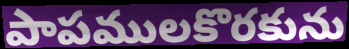
పాపములకొరకును